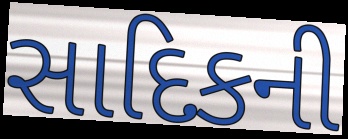
સાદિકની